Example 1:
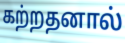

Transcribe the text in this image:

கற்றதனால்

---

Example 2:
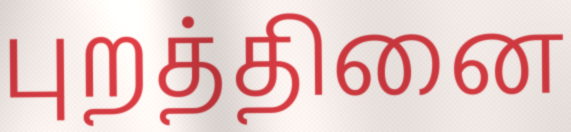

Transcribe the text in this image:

புறத்தினை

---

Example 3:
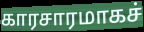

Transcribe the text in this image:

காரசாரமாகச்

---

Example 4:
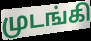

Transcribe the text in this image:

முடங்கி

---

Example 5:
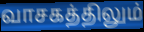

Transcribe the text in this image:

வாசகத்திலும்